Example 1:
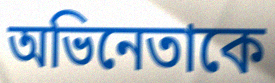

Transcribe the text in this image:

অভিনেতাকে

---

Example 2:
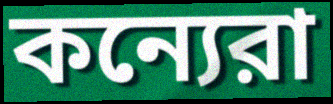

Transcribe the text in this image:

কন্যেরা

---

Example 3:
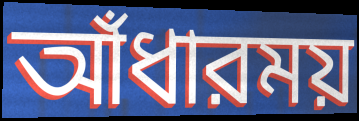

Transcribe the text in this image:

আঁধারময়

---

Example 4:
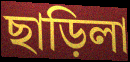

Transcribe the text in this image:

ছাড়িলা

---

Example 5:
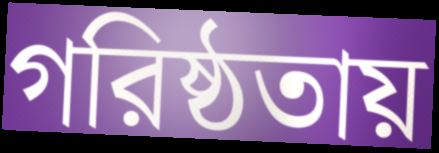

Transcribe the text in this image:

গরিষ্ঠতায়